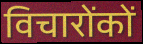
विचारोंकों